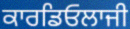
ਕਾਰਡਿਓਲਾਜੀ